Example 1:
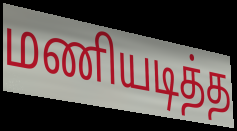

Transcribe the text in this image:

மணியடித்த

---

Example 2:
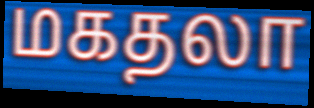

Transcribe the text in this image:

மகதலா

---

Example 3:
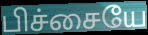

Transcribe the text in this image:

பிச்சையே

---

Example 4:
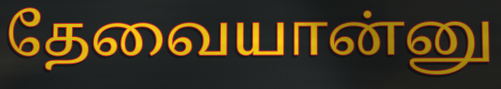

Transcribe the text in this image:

தேவையான்னு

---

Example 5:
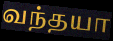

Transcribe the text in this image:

வந்தயா